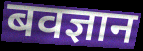
बवज्ञान